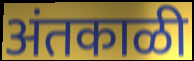
अंतकाळी